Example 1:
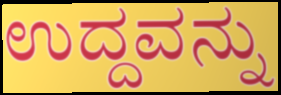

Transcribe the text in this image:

ಉದ್ದವನ್ನು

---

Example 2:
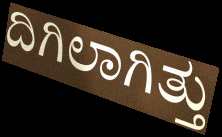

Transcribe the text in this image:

ದಿಗಿಲಾಗಿತ್ತು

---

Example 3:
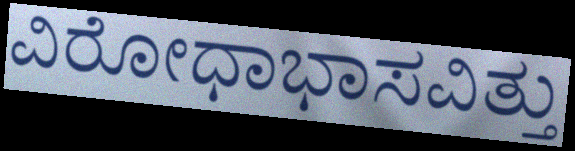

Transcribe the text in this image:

ವಿರೋಧಾಭಾಸವಿತ್ತು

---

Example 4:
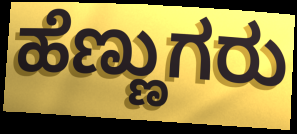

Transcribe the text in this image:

ಹೆಣ್ಣುಗರು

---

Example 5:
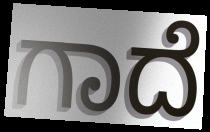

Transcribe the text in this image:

ಗಾದೆ